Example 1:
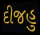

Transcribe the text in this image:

દીજહુ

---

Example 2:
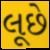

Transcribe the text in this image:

લૂછે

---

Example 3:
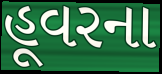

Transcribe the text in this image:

હૂવરના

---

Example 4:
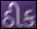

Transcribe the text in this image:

ઠીક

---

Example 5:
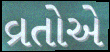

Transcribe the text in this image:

વ્રતોએ